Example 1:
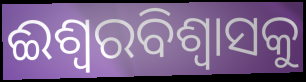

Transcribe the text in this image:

ଈଶ୍ୱରବିଶ୍ୱାସକୁ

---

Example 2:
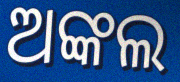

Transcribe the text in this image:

ଅଙ୍କଲ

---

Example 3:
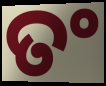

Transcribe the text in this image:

ତଂ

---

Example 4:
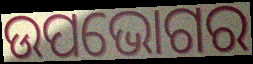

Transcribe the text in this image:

ଉପଭୋଗର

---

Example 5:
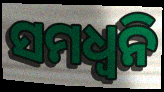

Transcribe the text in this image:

ସମଧ୍ୱନି